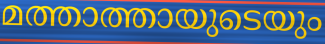
മത്താത്തായുടെയും